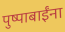
पुष्पाबाईंना